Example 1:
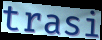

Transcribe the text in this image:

trasi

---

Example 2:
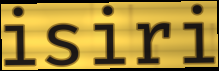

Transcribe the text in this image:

isiri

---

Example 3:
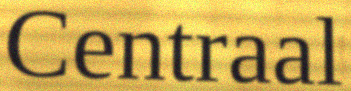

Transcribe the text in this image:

Centraal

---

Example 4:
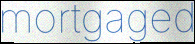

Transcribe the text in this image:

mortgaged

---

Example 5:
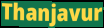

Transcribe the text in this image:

Thanjavur